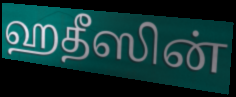
ஹதீஸின்